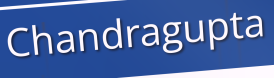
Chandragupta